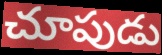
చూపుడు